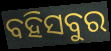
ବହିସବୁର